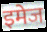
इमेज